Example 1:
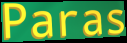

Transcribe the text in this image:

Paras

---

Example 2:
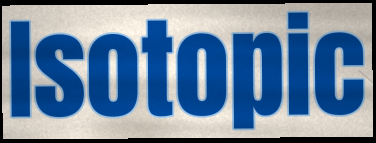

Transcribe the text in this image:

Isotopic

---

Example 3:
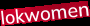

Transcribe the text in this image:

lokwomen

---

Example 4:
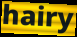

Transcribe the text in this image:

hairy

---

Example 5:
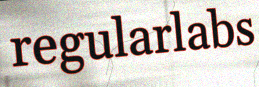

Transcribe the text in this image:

regularlabs